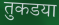
तुकडया